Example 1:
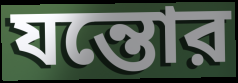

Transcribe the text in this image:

যন্তোর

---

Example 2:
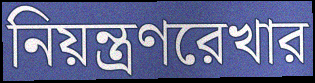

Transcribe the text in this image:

নিয়ন্ত্রণরেখার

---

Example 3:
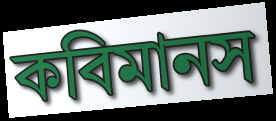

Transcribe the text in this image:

কবিমানস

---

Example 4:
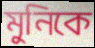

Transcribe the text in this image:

মুনিকে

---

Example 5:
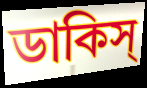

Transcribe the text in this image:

ডাকিস্